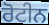
ਰੋਟੀਨ